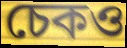
চেকও